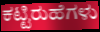
ಕಟ್ಟಿರುಹೆಗಳು